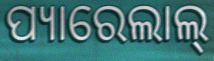
ପ୍ୟାରେଲାଲ୍